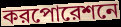
করপোরেশনে